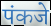
पंकजे